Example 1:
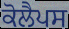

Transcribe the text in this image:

ਕੋਲੈਪਸ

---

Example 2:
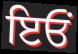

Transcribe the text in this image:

ਇਓਂ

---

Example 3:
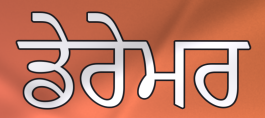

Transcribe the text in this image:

ਡੇਰੇਮਰ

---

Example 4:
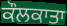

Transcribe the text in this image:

ਕੌਲਕਾਤਾ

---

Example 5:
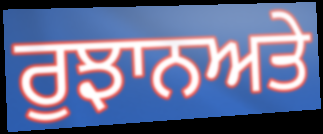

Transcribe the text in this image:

ਰੁਝਾਨਅਤੇ